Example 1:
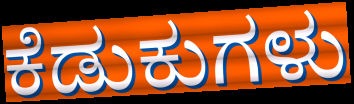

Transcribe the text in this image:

ಕೆಡುಕುಗಳು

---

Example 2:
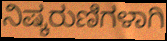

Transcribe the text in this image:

ನಿಷ್ಕರುಣಿಗಳಾಗಿ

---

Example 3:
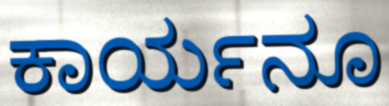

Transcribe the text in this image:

ಕಾರ್ಯನೂ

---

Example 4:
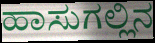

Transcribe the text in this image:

ಹಾಸುಗಲ್ಲಿನ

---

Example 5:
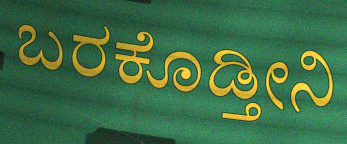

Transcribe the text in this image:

ಬರಕೊಡ್ತೀನಿ